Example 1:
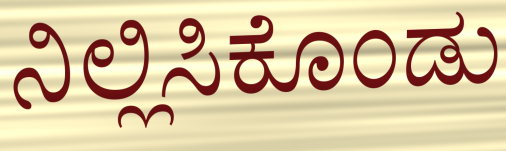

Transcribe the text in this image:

ನಿಲ್ಲಿಸಿಕೊಂಡು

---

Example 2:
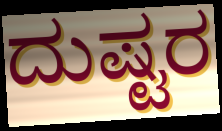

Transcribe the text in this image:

ದುಷ್ಟರ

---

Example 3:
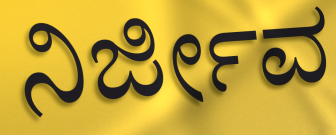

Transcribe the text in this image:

ನಿರ್ಜೀವ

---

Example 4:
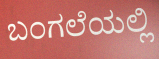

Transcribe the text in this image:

ಬಂಗಲೆಯಲ್ಲಿ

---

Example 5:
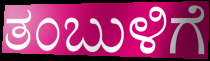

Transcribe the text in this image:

ತಂಬುಳಿಗೆ